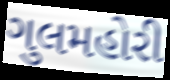
ગુલમહોરી